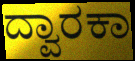
ದ್ವಾರಕಾ